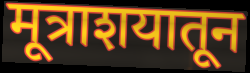
मूत्राशयातून